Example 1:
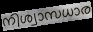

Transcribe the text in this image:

നിശ്വാസധാര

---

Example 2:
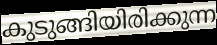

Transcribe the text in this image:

കുടുങ്ങിയിരിക്കുന്ന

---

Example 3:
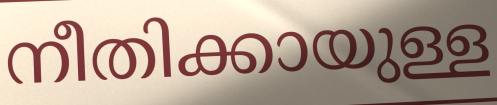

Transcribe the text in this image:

നീതിക്കായുള്ള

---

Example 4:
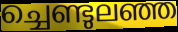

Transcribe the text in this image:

ച്ചെണ്ടുലഞ്ഞ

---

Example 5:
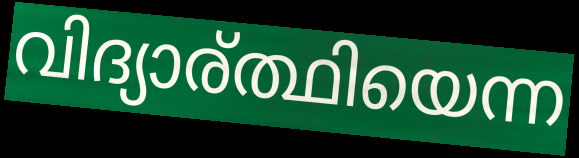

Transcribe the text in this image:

വിദ്യാര്ത്ഥിയെന്ന